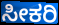
ಸೀಕರಿ